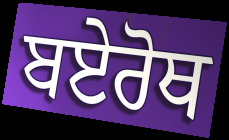
ਬਏਰੋਥ